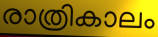
രാത്രികാലം